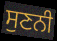
ਸੁਣਨੀ